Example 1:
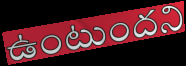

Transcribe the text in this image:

ఉంటుందని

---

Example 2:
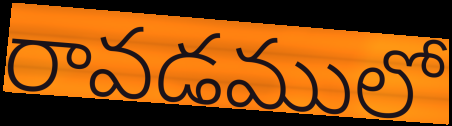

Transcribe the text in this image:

రావడములో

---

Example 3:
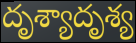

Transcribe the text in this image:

దృశ్యాదృశ్య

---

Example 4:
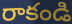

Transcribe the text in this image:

రాకండి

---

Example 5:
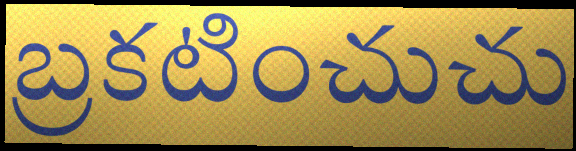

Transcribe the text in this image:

బ్రకటించుచు